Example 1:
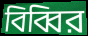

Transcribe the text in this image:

বিব্বির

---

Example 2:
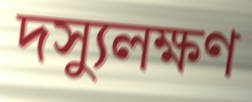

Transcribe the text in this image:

দস্যুলক্ষণ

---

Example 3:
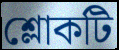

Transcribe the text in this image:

শ্লোকটি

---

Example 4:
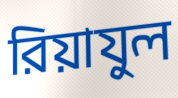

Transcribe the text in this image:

রিয়াযুল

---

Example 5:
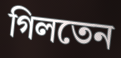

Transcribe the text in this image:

গিলতেন